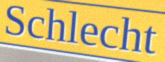
Schlecht